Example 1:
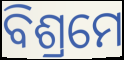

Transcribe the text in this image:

ବିଶ୍ରମେ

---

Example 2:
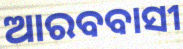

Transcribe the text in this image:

ଆରବବାସୀ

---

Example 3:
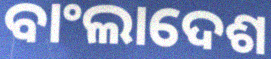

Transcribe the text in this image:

ବାଂଲାଦେଶ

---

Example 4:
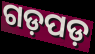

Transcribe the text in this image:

ଗଡ଼ପଡ଼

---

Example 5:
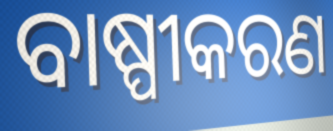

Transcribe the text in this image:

ବାଷ୍ପୀକରଣ